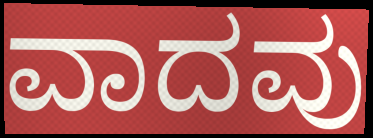
ವಾದವು